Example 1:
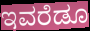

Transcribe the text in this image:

ಇವರೆಡೂ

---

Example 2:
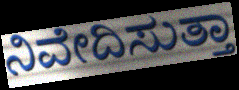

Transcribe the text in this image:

ನಿವೇದಿಸುತ್ತಾ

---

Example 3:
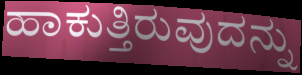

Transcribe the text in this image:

ಹಾಕುತ್ತಿರುವುದನ್ನು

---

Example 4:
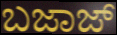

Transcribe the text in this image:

ಬಜಾಜ್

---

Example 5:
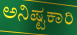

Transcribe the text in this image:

ಅನಿಷ್ಟಕಾರಿ